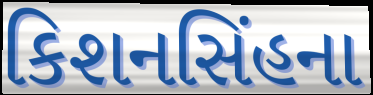
કિશનસિંહના